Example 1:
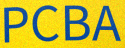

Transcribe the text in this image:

PCBA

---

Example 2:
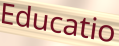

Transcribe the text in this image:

Educatio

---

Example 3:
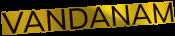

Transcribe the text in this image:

VANDANAM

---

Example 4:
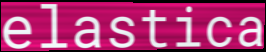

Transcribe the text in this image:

elastica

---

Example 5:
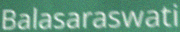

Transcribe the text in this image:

Balasaraswati